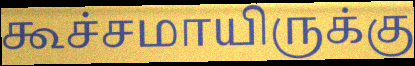
கூச்சமாயிருக்கு